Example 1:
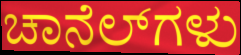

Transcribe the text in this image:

ಚಾನೆಲ್‌ಗಳು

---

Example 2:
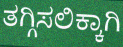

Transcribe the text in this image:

ತಗ್ಗಿಸಲಿಕ್ಕಾಗಿ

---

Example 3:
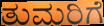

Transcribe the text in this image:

ತುಮರಿಗೆ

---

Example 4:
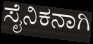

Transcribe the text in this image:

ಸೈನಿಕನಾಗಿ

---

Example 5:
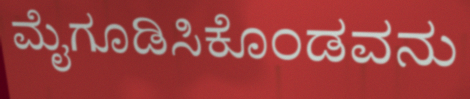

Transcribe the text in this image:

ಮೈಗೂಡಿಸಿಕೊಂಡವನು